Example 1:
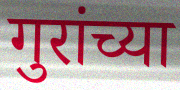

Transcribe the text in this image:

गुरांच्या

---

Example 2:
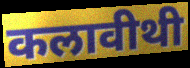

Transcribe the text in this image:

कलावीथी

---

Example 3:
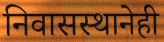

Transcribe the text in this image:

निवासस्थानेही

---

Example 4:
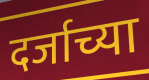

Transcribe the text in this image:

दर्जाच्या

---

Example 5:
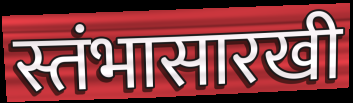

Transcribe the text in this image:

स्तंभासारखी